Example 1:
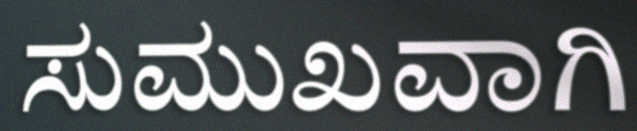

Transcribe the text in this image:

ಸುಮುಖವಾಗಿ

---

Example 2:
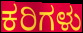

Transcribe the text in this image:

ಕರಿಗಳು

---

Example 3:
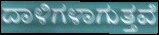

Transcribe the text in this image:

ದಾಳಿಗಳಾಗುತ್ತವೆ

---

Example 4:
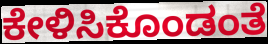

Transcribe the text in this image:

ಕೇಳಿಸಿಕೊಂಡಂತೆ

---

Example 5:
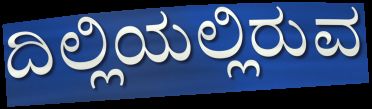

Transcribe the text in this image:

ದಿಲ್ಲಿಯಲ್ಲಿರುವ